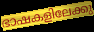
ഭാഷകളിലേക്കു